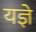
यज्ञे